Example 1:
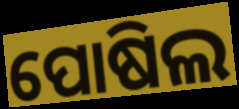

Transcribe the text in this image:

ପୋଷିଲ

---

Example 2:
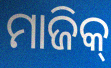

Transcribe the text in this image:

ମାଜିକ୍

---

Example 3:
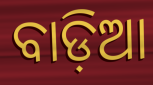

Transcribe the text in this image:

ବାଡ଼ିଆ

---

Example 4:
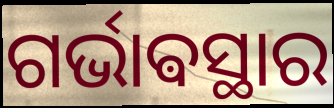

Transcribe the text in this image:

ଗର୍ଭାଵସ୍ଥାର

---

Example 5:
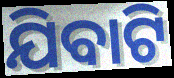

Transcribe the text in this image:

ଯିବାଟି